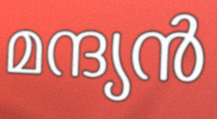
മന്ദ്യൻ